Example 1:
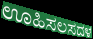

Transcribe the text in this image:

ಊಹಿಸಲಸದಳ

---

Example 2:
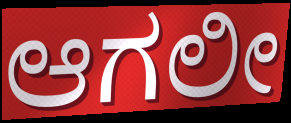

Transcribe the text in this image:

ಆಗಲೀ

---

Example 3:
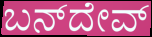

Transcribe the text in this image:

ಬನ್‌ದೇವ್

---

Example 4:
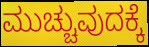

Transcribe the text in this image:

ಮುಚ್ಚುವುದಕ್ಕೆ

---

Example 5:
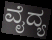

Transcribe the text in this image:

ವೈದ್ಯ